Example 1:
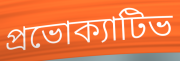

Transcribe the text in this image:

প্রভোক্যাটিভ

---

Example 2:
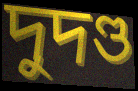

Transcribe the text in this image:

দুদণ্ড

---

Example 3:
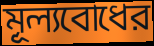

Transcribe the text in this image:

মূল্যবোধের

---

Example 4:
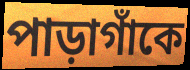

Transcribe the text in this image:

পাড়াগাঁকে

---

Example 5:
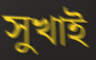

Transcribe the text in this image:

সুখাই